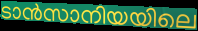
ടാൻസാനിയയിലെ